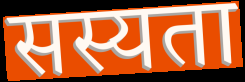
सस्यता